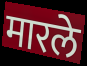
मारले